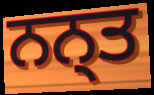
ਨਨ੍ਤ